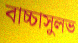
বাচ্চাসুলভ